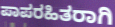
ಪಾಪರಹಿತರಾಗಿ